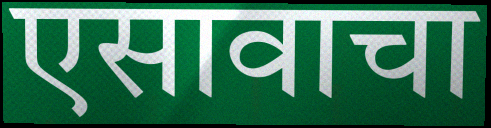
एसावाचा